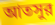
আতসুর